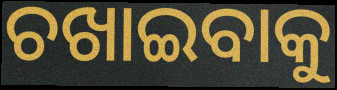
ଚଖାଇବାକୁ